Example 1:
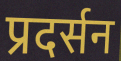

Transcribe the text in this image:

प्रदर्सन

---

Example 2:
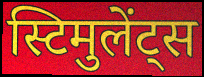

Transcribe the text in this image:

स्टिमुलेंट्स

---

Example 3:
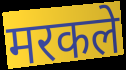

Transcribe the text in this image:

मरकले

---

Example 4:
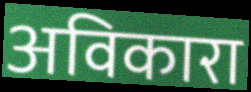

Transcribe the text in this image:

अविकारा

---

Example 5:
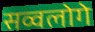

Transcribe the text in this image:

सव्वलोगे